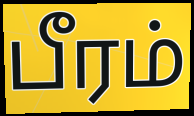
பீரம்